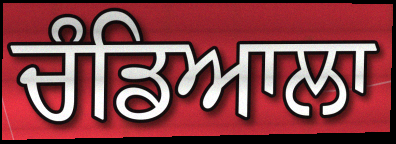
ਚੰਡਿਆਲਾ